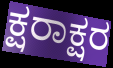
ಕ್ಷರಾಕ್ಷರ